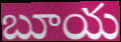
బూయ